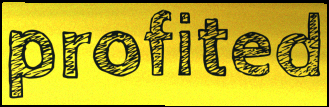
profited